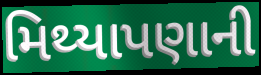
મિથ્યાપણાની